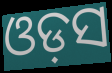
ଓଡ଼ସ